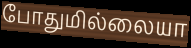
போதுமில்லையா